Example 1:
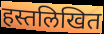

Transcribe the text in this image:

हस्तलिखित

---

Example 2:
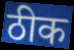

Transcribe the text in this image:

ठीक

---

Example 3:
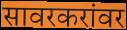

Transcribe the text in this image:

सावरकरांवर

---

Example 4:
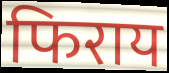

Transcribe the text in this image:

फिराय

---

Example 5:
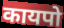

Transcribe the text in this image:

कायपो